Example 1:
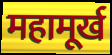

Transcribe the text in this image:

महामूर्ख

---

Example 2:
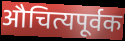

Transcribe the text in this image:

औचित्यपूर्वक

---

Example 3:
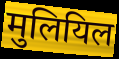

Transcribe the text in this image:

मुलियिल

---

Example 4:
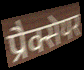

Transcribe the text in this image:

प्रैक्सेयर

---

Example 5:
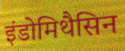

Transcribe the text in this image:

इंडोमिथैसिन